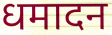
धमादन